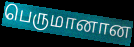
பெருமானான